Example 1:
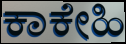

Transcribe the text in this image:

ಕಾಕೇಹಿ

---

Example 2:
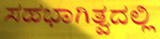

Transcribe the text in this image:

ಸಹಭಾಗಿತ್ವದಲ್ಲಿ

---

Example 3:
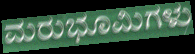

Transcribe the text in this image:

ಮರುಭೂಮಿಗಳು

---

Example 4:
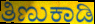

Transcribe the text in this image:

ತಿಣುಕಾಡಿ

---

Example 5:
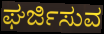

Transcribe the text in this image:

ಘರ್ಜಿಸುವ